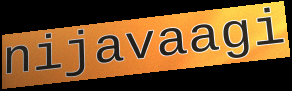
nijavaagi